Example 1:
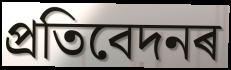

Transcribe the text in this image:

প্ৰতিবেদনৰ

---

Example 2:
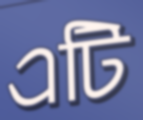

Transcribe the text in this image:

এটি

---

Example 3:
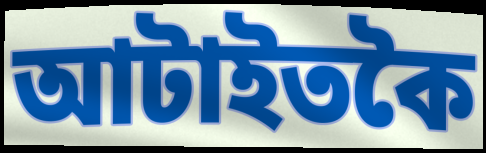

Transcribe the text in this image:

আটাইতকৈ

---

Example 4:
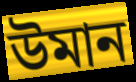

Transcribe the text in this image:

উমান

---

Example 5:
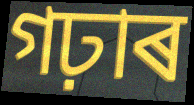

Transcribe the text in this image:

গঢ়াৰ